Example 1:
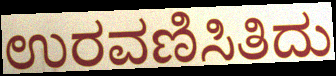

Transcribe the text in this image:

ಉರವಣಿಸಿತಿದು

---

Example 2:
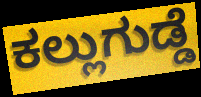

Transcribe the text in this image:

ಕಲ್ಲುಗುಡ್ಡೆ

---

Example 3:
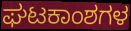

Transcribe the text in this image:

ಘಟಕಾಂಶಗಳ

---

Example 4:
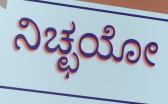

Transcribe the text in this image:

ನಿಚ್ಛಯೋ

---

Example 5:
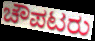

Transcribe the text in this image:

ಚೌಪಟರು